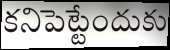
కనిపెట్టేందుకు